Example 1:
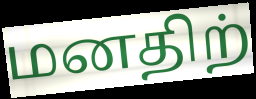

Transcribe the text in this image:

மனதிற்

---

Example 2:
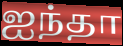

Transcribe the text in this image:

ஐந்தா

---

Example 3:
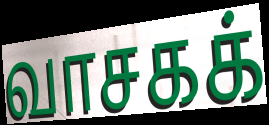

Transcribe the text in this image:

வாசகக்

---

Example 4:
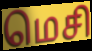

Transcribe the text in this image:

மெசி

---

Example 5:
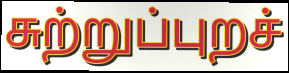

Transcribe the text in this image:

சுற்றுப்புறச்